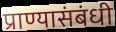
प्राण्यासंबंधी